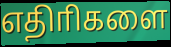
எதிரிகளை